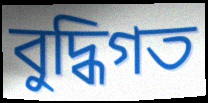
বুদ্ধিগত